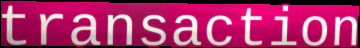
transaction